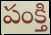
పంక్తి